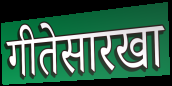
गीतेसारखा